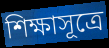
শিক্ষাসূত্রে